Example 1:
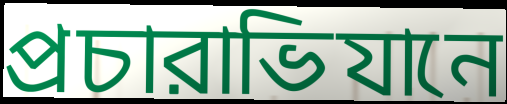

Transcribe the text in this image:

প্রচারাভিযানে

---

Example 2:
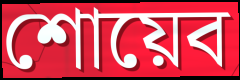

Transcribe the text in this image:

শোয়েব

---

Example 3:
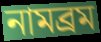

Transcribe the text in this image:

নামব্রম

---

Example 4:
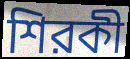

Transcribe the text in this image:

শিরকী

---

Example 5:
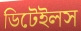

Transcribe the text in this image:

ডিটেইলস